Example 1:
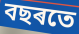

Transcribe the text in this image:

বছৰতে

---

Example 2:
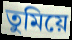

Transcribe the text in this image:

তুমিয়ে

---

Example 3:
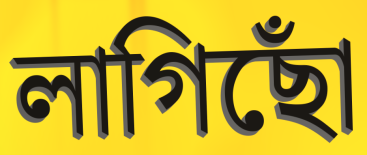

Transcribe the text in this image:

লাগিছোঁ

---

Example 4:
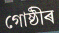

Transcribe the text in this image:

গোষ্ঠীৰ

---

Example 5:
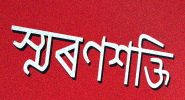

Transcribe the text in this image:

স্মৰণশক্তি